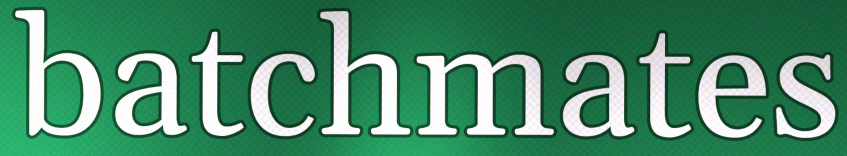
batchmates